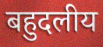
बहुदलीय